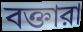
বক্তারা